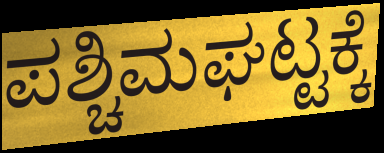
ಪಶ್ಚಿಮಘಟ್ಟಕ್ಕೆ